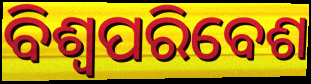
ବିଶ୍ୱପରିବେଶ